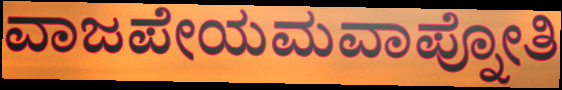
ವಾಜಪೇಯಮವಾಪ್ನೋತಿ